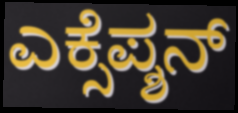
ಎಕ್ಸೆಪ್ಶನ್